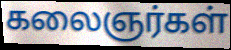
கலைஞர்கள்